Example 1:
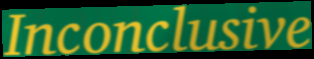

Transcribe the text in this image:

Inconclusive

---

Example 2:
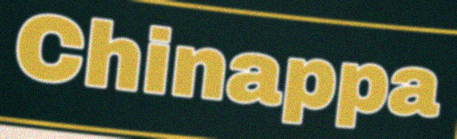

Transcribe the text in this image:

Chinappa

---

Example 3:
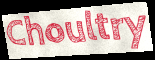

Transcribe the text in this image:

Choultry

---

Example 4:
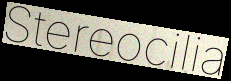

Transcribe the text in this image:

Stereocilia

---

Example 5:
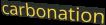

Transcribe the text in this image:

carbonation